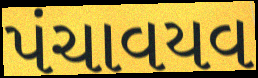
પંચાવયવ